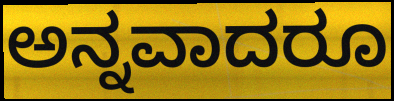
ಅನ್ನವಾದರೂ